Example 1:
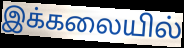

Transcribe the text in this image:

இக்கலையில்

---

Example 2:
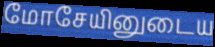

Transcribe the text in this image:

மோசேயினுடைய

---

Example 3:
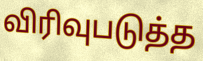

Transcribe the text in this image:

விரிவுபடுத்த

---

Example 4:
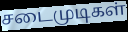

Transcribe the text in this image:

சடைமுடிகள்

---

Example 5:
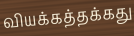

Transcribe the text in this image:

வியக்கத்தக்கது